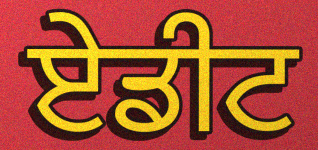
ਏਡੀਟ